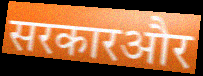
सरकारऔर